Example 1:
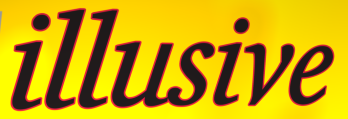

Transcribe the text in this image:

illusive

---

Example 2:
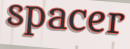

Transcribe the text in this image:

spacer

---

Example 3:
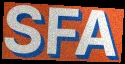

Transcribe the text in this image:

SFA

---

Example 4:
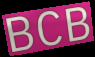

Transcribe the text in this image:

BCB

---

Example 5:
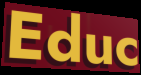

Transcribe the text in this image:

Educ